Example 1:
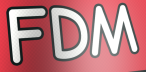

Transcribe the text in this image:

FDM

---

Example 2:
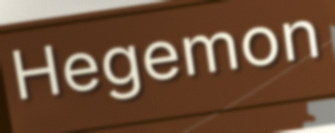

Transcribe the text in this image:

Hegemon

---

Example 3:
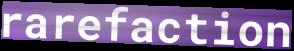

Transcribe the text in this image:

rarefaction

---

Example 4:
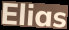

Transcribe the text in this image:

Elias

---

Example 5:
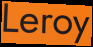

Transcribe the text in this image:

Leroy